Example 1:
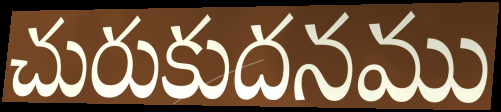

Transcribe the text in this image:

చురుకుదనము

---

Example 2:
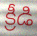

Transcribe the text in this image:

క్రీడి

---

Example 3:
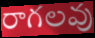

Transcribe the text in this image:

రాగలవు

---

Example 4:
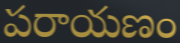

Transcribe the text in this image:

పరాయణం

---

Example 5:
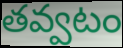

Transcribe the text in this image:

తవ్వటం